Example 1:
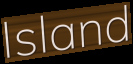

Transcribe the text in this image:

Island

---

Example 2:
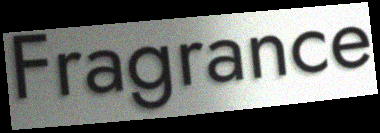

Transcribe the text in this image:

Fragrance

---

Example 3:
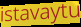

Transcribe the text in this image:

istavaytu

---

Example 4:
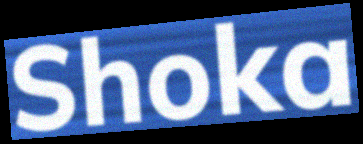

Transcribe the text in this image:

Shoka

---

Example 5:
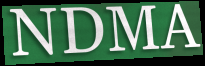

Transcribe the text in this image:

NDMA